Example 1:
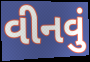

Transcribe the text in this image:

વીનવું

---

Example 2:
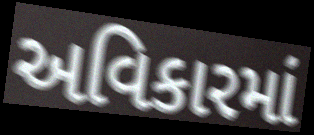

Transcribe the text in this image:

અવિકારમાં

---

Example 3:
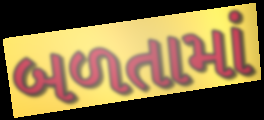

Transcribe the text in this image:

બળતામાં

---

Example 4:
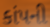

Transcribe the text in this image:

કાંપની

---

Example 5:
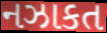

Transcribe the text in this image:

નઝાકત